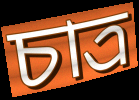
চাত্র